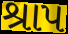
શ્રાપ